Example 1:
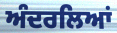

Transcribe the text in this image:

ਅੰਦਰਲਿਆਂ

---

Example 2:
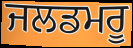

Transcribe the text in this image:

ਜਲਡਮਰੂ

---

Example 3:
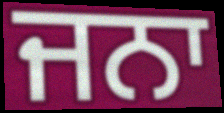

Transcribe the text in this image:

ਜਨਾ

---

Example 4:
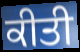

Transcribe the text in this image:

ਕੀਤੀ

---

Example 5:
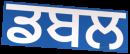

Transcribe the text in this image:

ਡਬਲ